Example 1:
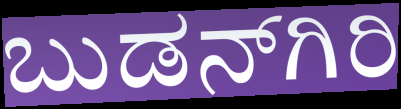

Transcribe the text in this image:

ಬುಡನ್‍ಗಿರಿ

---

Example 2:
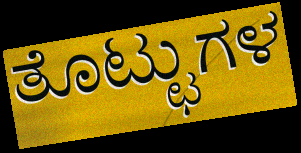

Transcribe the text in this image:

ತೊಟ್ಟುಗಳ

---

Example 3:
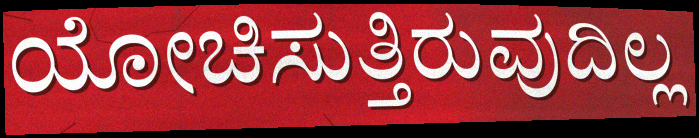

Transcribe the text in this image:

ಯೋಚಿಸುತ್ತಿರುವುದಿಲ್ಲ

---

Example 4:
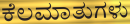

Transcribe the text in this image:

ಕೆಲಮಾತುಗಳು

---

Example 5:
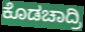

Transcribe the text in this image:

ಕೊಡಚಾದ್ರಿ